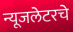
न्यूजलेटरचे